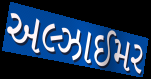
અલ્ઝાઈમર